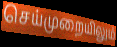
செய்முறையிலும்